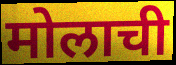
मोलाची